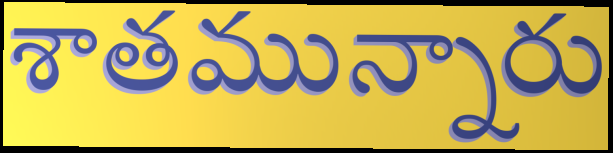
శాతమున్నారు